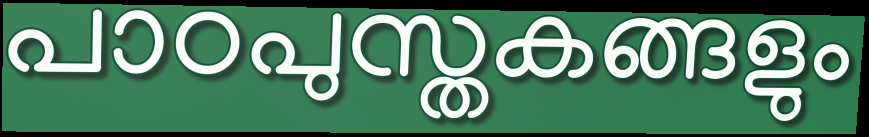
പാഠപുസ്തകങ്ങളും